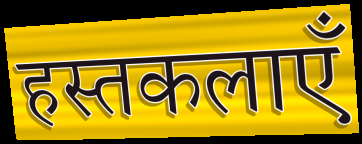
हस्तकलाएँ